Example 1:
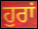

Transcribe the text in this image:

ਹੁਰਾਂ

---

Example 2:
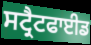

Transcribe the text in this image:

ਸਟ੍ਰੈਟਫਾਈਡ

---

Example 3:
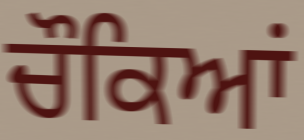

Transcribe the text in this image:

ਚੌਕਿਆਂ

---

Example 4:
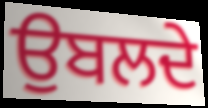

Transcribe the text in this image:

ਉਬਲਦੇ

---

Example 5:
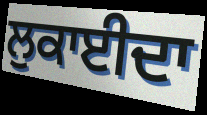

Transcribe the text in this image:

ਲੁਕਾਈਦਾ